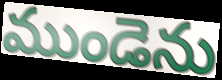
ముండెను